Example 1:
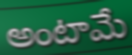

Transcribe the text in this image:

అంటామే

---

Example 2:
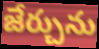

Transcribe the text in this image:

జేర్చును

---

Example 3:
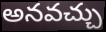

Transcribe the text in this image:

అనవచ్చు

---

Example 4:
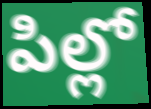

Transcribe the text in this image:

పిల్లో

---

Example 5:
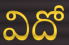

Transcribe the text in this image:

విదో